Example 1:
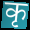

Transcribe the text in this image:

कृ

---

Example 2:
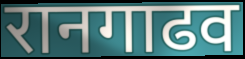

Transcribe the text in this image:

रानगाढव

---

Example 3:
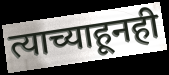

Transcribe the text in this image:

त्याच्याहूनही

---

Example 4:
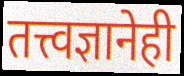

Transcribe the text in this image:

तत्त्वज्ञानेही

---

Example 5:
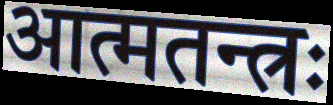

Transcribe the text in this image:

आत्मतन्त्रः